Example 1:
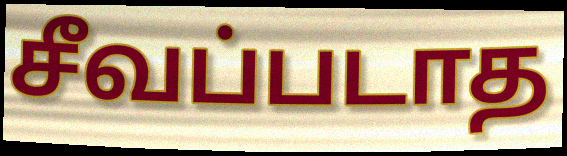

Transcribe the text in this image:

சீவப்படாத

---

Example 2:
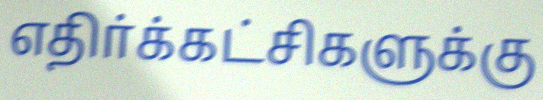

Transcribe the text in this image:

எதிர்க்கட்சிகளுக்கு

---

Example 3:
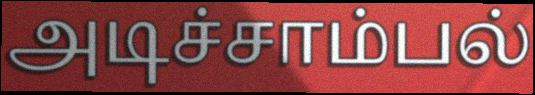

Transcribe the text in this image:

அடிச்சாம்பல்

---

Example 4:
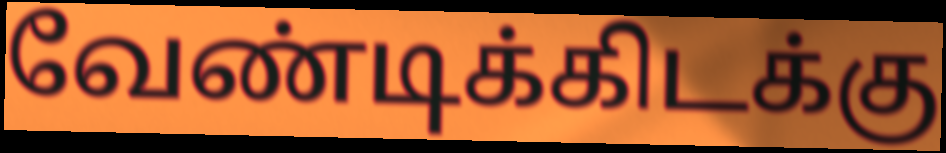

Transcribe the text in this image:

வேண்டிக்கிடக்கு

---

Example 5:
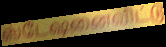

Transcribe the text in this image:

ஸ்டேஷனைவிட்டு